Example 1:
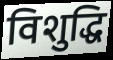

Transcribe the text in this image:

विशुद्धि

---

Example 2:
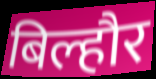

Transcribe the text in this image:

बिल्हौर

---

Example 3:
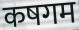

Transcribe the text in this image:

कषगम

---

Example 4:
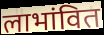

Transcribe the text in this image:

लाभांवित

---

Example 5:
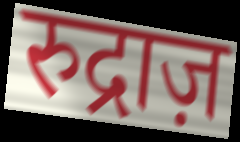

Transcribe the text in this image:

रुद्राज़